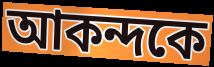
আকন্দকে